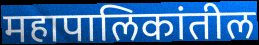
महापालिकांतील